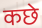
कछे